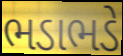
ભડાભડે